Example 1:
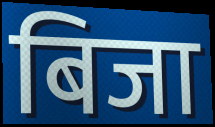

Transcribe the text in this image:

बिजा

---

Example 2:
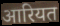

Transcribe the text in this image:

आरियत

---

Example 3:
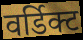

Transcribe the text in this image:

वर्डिक्ट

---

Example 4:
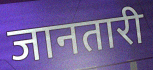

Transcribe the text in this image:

जानतारी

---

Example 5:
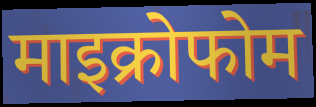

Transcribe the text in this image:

माइक्रोफोम